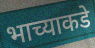
भाच्याकडे